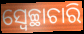
ସ୍ଵେଚ୍ଛାଚାରି